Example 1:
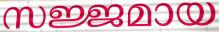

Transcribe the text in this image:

സജ്ജമായ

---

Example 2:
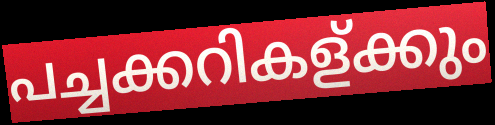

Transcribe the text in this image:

പച്ചക്കറികള്ക്കും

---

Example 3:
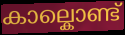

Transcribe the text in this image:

കാല്കൊണ്ട്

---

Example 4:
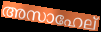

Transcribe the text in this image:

അസാഹേല്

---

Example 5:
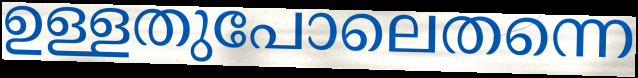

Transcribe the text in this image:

ഉള്ളതുപോലെതന്നെ